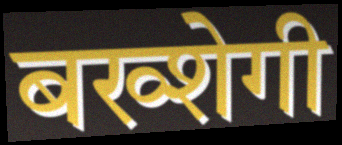
बख्शेगी